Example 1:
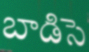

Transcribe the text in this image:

బాడిసె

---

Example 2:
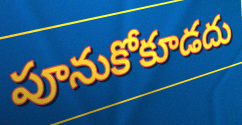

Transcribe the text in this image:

పూనుకోకూడదు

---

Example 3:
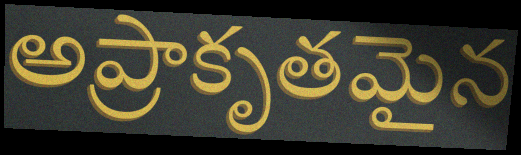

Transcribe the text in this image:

అప్రాకృతమైన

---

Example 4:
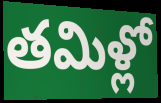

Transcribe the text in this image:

తమిళ్లో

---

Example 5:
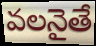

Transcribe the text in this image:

వలనైతే